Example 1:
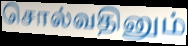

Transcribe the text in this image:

சொல்வதினும்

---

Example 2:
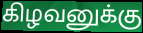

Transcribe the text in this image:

கிழவனுக்கு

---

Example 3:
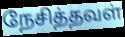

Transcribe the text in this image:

நேசித்தவள்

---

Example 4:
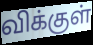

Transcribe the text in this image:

விக்குள்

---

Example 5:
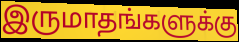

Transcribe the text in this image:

இருமாதங்களுக்கு